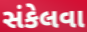
સંકેલવા